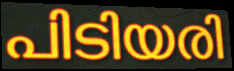
പിടിയരി